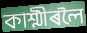
কাশ্মীৰলৈ